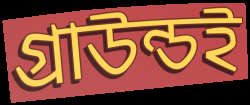
গ্রাউন্ডই